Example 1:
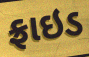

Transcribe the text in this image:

ફ્રાઇડ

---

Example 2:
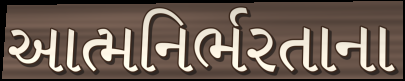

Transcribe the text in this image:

આત્મનિર્ભરતાના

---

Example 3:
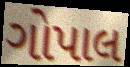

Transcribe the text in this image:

ગોપાલ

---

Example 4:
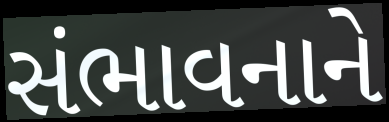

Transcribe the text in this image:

સંભાવનાને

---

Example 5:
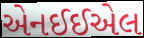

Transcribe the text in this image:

એનઈઈએલ